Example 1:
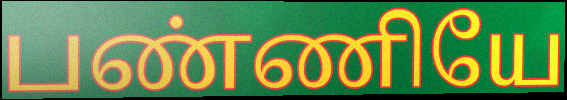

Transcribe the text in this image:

பண்ணியே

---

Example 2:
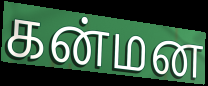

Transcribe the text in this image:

கன்மன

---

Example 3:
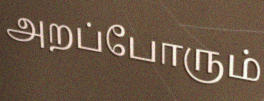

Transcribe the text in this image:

அறப்போரும்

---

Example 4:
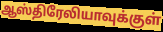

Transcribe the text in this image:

ஆஸ்திரேலியாவுக்குள்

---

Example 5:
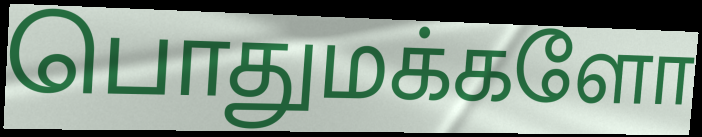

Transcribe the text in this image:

பொதுமக்களோ